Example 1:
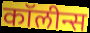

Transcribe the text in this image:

कॉलीन्स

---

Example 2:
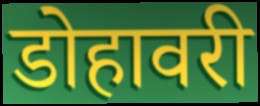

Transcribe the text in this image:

डोहावरी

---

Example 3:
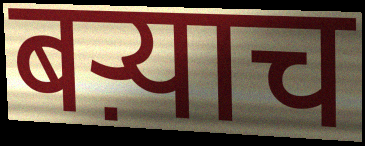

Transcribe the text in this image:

बऱ्‍याच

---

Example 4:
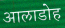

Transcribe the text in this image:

आलाडोह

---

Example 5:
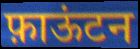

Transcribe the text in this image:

फ़ाऊंटन